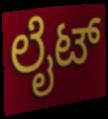
ಲೈಟ್